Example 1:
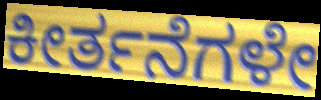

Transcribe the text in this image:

ಕೀರ್ತನೆಗಳೇ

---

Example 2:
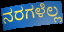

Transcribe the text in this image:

ನರಗಳೆಲ್ಲ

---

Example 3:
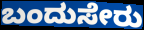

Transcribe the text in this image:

ಬಂದುಸೇರು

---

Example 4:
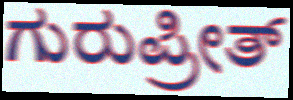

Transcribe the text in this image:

ಗುರುಪ್ರೀತ್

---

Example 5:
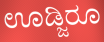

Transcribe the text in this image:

ಊಡ್ಜಿರೂ